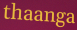
thaanga